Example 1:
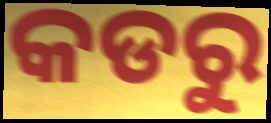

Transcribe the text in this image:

କଡରୁ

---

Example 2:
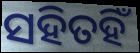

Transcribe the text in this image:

ସହିତହିଁ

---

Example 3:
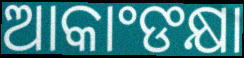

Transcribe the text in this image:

ଆକାଂଙକ୍ଷା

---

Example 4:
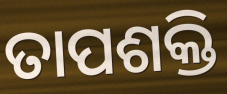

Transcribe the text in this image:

ତାପଶକ୍ତି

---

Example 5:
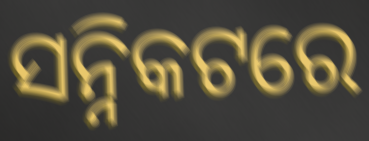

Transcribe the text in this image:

ସନ୍ନିକଟରେ